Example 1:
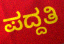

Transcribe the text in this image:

ಪದ್ದತಿ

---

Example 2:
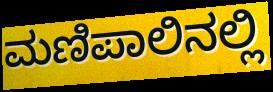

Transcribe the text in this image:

ಮಣಿಪಾಲಿನಲ್ಲಿ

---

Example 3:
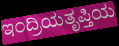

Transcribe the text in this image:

ಇಂದ್ರಿಯತೃಪ್ತಿಯ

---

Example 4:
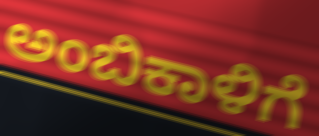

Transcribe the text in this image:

ಅಂಬಿಕಾಳಿಗೆ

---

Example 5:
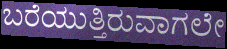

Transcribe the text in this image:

ಬರೆಯುತ್ತಿರುವಾಗಲೇ